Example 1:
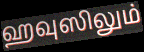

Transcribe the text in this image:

ஹவுஸிலும்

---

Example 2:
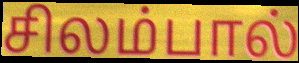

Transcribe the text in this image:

சிலம்பால்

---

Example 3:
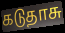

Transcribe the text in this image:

கடுதாசு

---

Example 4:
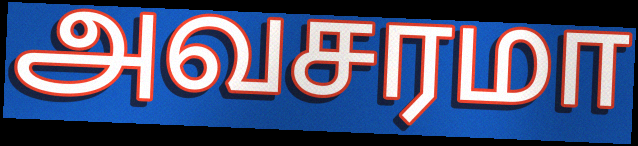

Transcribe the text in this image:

அவசரமா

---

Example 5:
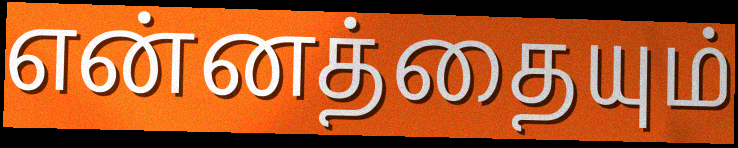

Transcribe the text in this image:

என்னத்தையும்